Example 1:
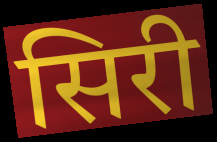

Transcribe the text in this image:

सिरी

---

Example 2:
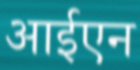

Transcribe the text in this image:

आईएन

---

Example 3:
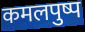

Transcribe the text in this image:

कमलपुष्प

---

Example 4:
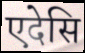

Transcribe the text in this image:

एदेसि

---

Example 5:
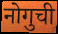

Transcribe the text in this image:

नोगुची